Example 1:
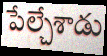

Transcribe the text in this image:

పేల్చేశాడు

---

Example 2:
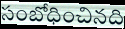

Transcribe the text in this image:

సంబోధించినది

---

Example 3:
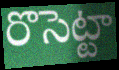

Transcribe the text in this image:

రొసెట్టా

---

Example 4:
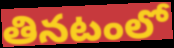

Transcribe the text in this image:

తినటంలో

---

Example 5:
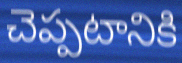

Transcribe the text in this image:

చెప్పటానికి